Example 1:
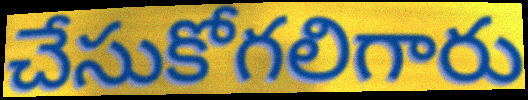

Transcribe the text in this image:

చేసుకోగలిగారు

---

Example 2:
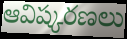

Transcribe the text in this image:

ఆవిష్కరణలు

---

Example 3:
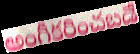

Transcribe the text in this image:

అంగీకరించబడే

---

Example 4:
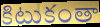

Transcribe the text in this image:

కిటుకంతా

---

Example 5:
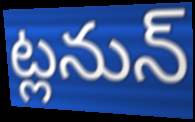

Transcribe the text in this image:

ట్లనున్